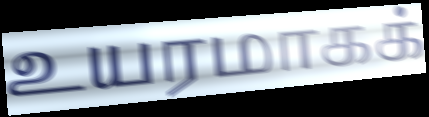
உயரமாகக்